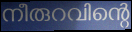
നീരുറവിന്റെ